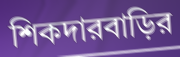
শিকদারবাড়ির